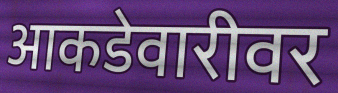
आकडेवारीवर